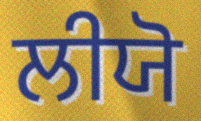
ਲੀਯੋ